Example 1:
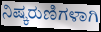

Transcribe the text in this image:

ನಿಷ್ಕರುಣಿಗಳಾಗಿ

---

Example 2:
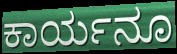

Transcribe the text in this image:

ಕಾರ್ಯನೂ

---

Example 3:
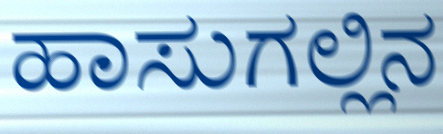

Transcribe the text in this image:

ಹಾಸುಗಲ್ಲಿನ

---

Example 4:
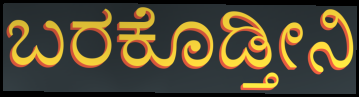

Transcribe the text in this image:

ಬರಕೊಡ್ತೀನಿ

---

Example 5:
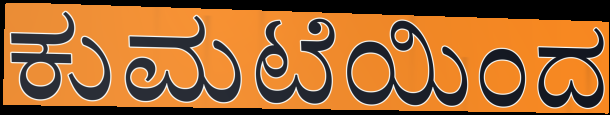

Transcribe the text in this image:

ಕುಮಟೆಯಿಂದ